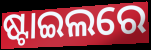
ଷ୍ଟାଇଲରେ